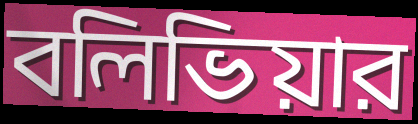
বলিভিয়ার